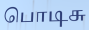
பொடிசு